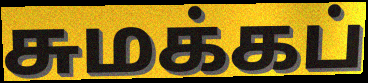
சுமக்கப்